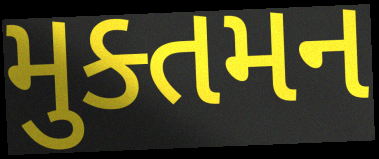
મુક્તમન